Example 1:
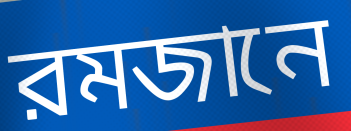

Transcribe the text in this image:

রমজানে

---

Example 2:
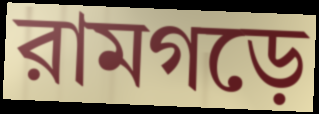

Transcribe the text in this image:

রামগড়ে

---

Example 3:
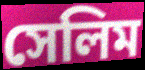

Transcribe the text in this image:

সেলিম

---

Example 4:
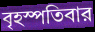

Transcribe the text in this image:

বৃহস্পতিবার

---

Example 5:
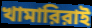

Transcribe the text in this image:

খামারিরাই